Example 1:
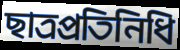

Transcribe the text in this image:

ছাত্রপ্রতিনিধি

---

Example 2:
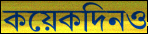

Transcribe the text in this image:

কয়েকদিনও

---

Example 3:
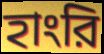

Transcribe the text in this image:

হাংরি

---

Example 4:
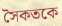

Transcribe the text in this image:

সৈকতকে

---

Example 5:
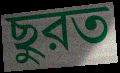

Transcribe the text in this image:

ছুরত